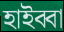
হাইব্বা